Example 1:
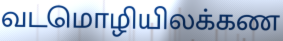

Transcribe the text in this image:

வடமொழியிலக்கண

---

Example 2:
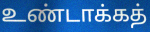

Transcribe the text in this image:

உண்டாக்கத்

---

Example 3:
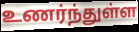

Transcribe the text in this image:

உணர்ந்துள்ள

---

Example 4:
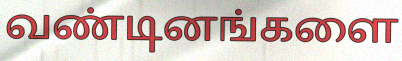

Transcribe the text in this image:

வண்டினங்களை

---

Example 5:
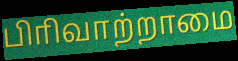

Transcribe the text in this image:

பிரிவாற்றாமை